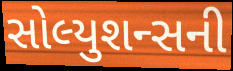
સોલ્યુશન્સની